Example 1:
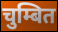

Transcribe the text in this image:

चुम्बित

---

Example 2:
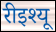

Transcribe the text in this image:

रीइश्यू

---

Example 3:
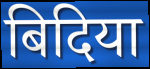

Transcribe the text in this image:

बिदिया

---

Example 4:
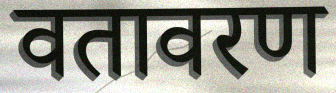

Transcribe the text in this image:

वतावरण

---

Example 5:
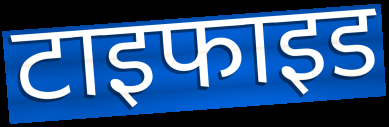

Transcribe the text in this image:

टाइफाइड